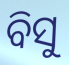
ବିସୁ